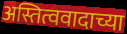
अस्तित्ववादाच्या